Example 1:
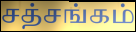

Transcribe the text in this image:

சத்சங்கம்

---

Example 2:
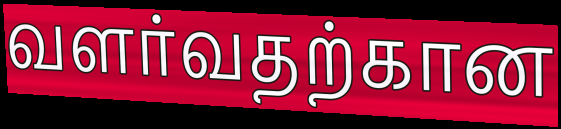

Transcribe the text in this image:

வளர்வதற்கான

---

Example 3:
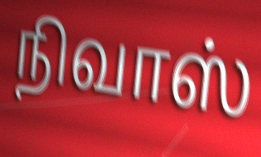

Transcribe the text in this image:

நிவாஸ்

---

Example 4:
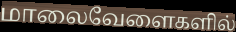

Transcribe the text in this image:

மாலைவேளைகளில்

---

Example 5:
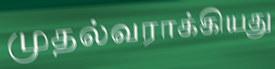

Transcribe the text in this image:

முதல்வராக்கியது